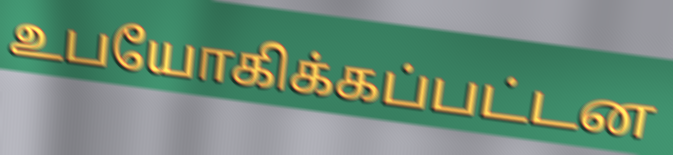
உபயோகிக்கப்பட்டன